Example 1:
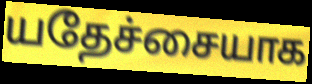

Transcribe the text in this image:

யதேச்சையாக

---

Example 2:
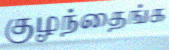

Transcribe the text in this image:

குழந்தைங்க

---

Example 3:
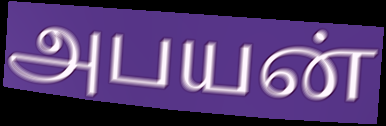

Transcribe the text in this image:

அபயன்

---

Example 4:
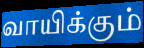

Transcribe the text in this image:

வாயிக்கும்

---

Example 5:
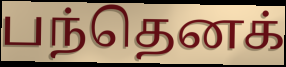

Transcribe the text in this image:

பந்தெனக்